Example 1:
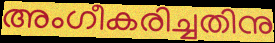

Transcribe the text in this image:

അംഗീകരിച്ചതിനു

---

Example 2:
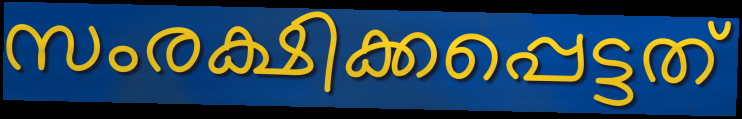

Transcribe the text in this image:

സംരക്ഷിക്കപ്പെട്ടത്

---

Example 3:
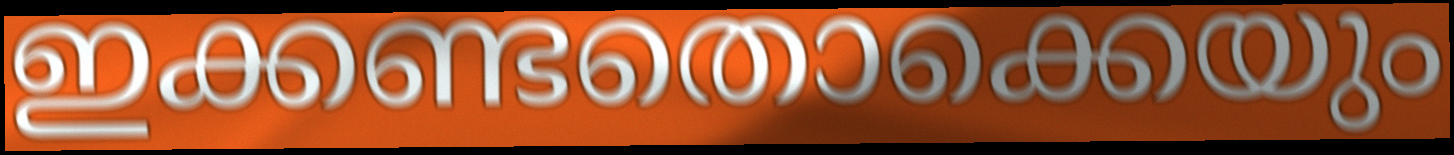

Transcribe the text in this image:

ഇക്കണ്ടതൊക്കെയും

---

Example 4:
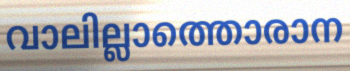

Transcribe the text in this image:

വാലില്ലാത്തൊരാന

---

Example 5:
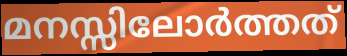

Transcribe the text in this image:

മനസ്സിലോർത്തത്